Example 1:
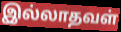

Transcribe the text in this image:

இல்லாதவள்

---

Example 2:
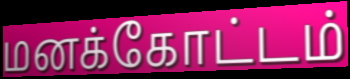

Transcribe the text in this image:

மனக்கோட்டம்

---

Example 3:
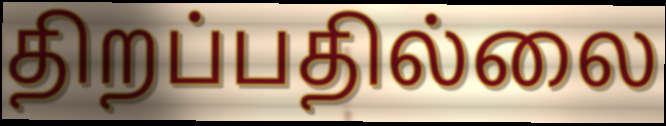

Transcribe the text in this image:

திறப்பதில்லை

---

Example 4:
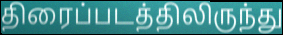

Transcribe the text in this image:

திரைப்படத்திலிருந்து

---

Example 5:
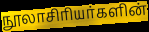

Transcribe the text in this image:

நூலாசிரியர்களின்